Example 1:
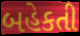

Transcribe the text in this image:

બહેકતી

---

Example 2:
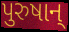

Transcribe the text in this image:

પુરુષાન્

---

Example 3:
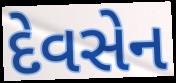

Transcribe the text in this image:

દેવસેન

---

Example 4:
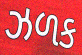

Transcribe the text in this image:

ઝળક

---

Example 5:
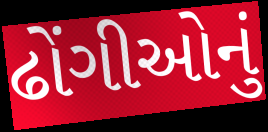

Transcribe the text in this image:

ઢોંગીઓનું